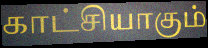
காட்சியாகும்